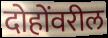
दोहोंवरील